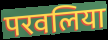
परवलिया